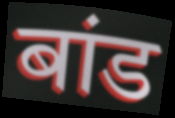
बांड